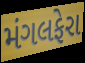
મંગલફેરા